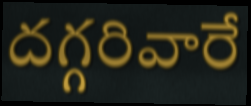
దగ్గరివారే